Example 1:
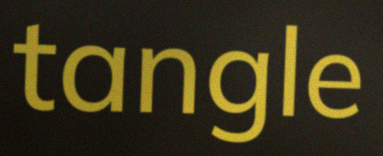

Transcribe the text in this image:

tangle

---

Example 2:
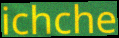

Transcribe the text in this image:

ichche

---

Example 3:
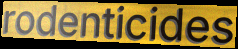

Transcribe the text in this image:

rodenticides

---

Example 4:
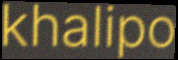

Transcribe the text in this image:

khalipo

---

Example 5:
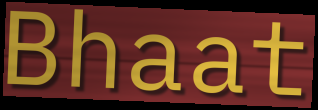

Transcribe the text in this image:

Bhaat